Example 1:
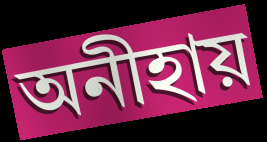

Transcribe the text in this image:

অনীহায়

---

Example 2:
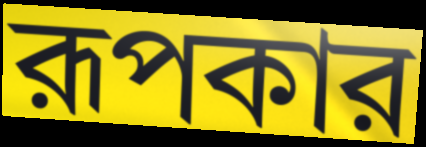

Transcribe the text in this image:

রূপকার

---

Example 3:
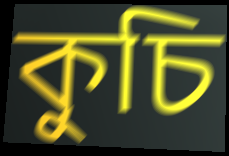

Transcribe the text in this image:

কুচি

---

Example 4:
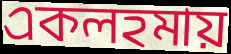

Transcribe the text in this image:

একলহমায়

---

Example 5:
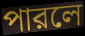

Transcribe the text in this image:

পারলে